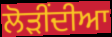
ਲੋੜੀਂਦੀਆ